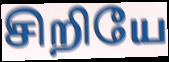
சிறியே